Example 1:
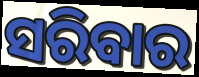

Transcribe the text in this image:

ସରିବାର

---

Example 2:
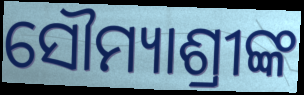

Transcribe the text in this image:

ସୌମ୍ୟାଶ୍ରୀଙ୍କ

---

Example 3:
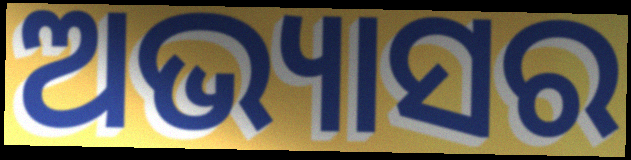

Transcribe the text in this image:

ଅଭ୍ୟାସର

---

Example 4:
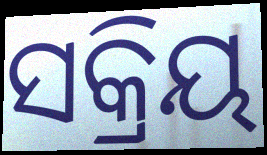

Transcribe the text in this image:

ସକ୍ରିୟ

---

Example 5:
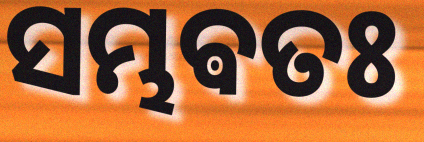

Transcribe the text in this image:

ସମ୍ଭଵତଃ